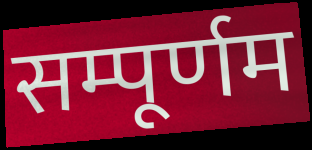
सम्पूर्णम